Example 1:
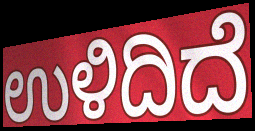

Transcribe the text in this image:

ಉಳಿದಿದೆ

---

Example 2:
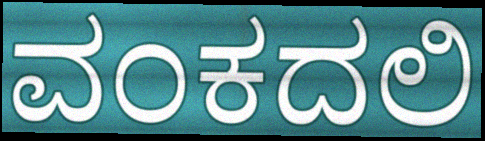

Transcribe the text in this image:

ವಂಕದಲಿ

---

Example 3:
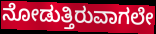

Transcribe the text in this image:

ನೋಡುತ್ತಿರುವಾಗಲೇ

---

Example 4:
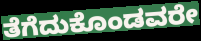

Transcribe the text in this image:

ತೆಗೆದುಕೊಂಡವರೇ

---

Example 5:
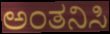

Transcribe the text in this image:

ಅಂತನಿಸಿ